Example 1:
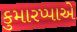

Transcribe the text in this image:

કુમારપ્પાએ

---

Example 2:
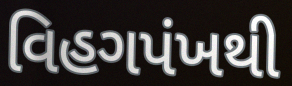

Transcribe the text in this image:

વિહગપંખથી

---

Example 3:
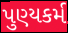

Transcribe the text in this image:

પુણ્યકર્મ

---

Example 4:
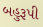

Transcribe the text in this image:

બહુરૂપી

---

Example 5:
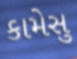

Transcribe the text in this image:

કામેસુ